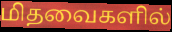
மிதவைகளில்